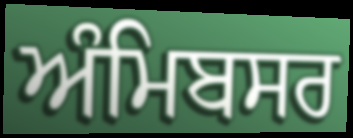
ਅੰਮਿਬਸਰ